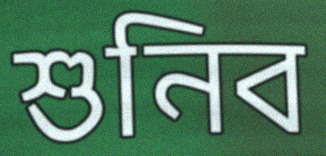
শুনিব